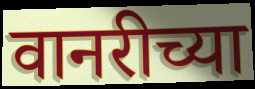
वानरीच्या